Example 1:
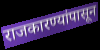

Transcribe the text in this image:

राजकारण्यांपासून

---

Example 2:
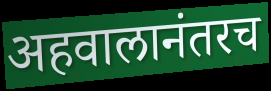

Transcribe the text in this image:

अहवालानंतरच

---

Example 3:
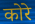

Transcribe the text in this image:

कोरे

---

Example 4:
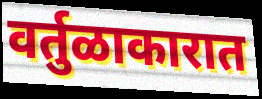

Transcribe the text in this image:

वर्तुळाकारात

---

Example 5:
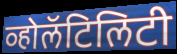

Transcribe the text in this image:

व्होलॅटिलिटी